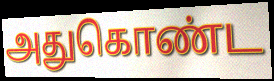
அதுகொண்ட